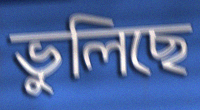
ভুলিছে